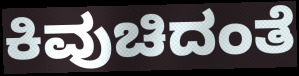
ಕಿವುಚಿದಂತೆ